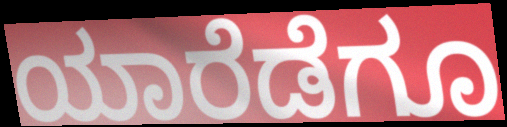
ಯಾರೆಡೆಗೂ